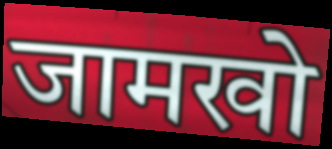
जामखो